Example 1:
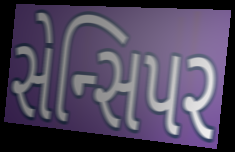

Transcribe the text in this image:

સેન્સિપર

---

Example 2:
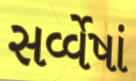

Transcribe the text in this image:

સર્વ્વેષાં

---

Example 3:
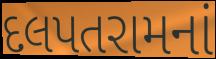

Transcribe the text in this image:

દલપતરામનાં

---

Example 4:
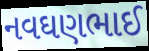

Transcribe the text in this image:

નવઘણભાઈ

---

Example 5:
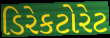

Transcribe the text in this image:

ડિરેકટોરેટ